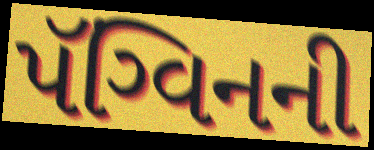
પૅંગ્વિનની